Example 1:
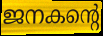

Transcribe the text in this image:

ജനകന്റെ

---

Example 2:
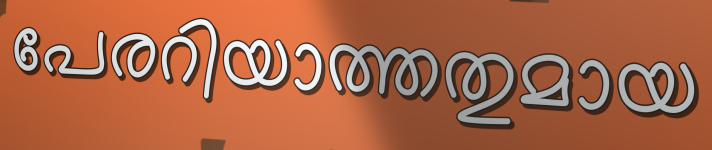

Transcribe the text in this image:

പേരറിയാത്തതുമായ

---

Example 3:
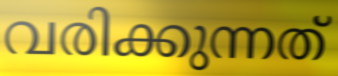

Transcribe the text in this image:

വരിക്കുന്നത്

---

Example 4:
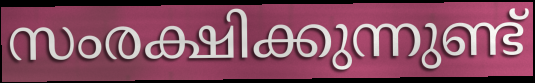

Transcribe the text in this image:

സംരക്ഷിക്കുന്നുണ്ട്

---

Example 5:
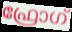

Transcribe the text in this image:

ഫ്രോഗ്